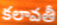
కలావతీ